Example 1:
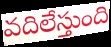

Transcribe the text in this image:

వదిలేస్తుంది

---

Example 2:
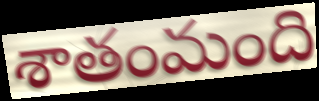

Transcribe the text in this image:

శాతంమంది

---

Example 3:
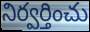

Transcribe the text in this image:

నిర్వర్తించు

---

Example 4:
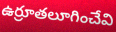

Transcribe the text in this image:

ఉర్రూతలూగించేవి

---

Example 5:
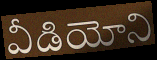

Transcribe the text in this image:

వీడియోని